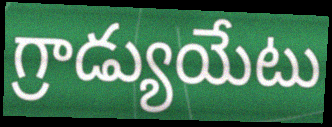
గ్రాడ్యుయేటు